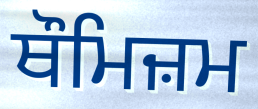
ਥੌਮਿਜ਼ਮ